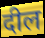
दील